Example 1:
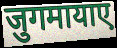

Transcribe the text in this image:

जुगमायाए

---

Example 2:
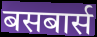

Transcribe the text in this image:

बसबार्स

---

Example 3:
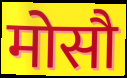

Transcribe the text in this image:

मोसौ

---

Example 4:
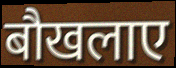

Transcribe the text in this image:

बौखलाए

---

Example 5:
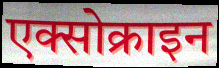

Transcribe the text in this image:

एक्सोक्राइन